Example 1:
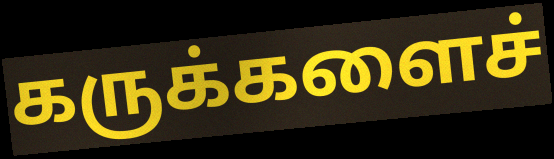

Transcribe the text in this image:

கருக்களைச்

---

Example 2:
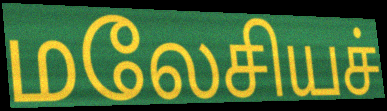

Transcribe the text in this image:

மலேசியச்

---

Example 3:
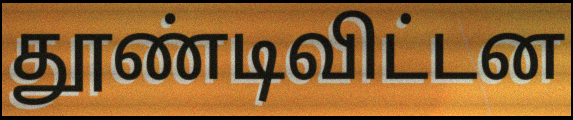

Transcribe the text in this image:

தூண்டிவிட்டன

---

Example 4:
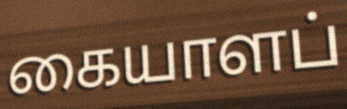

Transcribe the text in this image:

கையாளப்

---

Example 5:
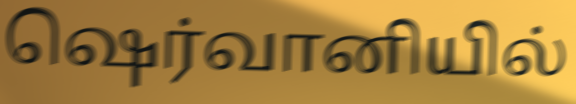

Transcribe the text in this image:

ஷெர்வானியில்